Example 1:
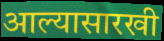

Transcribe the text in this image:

आल्यासारखी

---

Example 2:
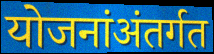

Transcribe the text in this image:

योजनांअंतर्गत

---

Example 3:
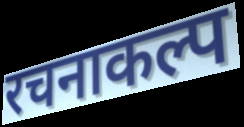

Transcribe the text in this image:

रचनाकल्प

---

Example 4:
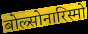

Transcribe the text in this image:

बोल्सोनारिस्मो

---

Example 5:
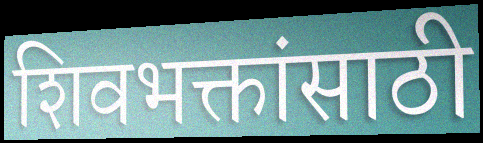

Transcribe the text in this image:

शिवभक्तांसाठी